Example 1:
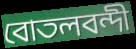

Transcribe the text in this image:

বোতলবন্দী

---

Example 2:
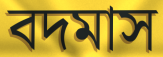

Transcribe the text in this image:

বদমাস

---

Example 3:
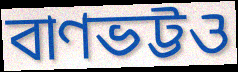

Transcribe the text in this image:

বাণভট্টও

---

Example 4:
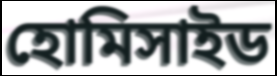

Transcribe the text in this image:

হোমিসাইড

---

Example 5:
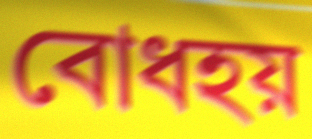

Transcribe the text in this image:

বোধহয়